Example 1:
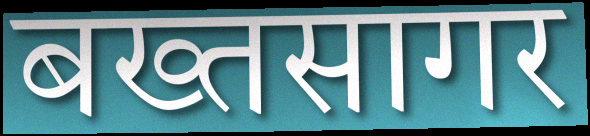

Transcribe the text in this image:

बख्तसागर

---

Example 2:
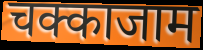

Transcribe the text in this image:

चक्काजाम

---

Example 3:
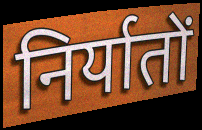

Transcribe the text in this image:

निर्यातों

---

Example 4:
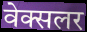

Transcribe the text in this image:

वेक्सलर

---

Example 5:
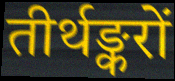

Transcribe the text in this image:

तीर्थङ्करों